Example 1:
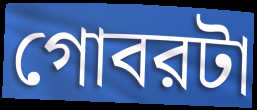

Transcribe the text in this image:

গোবরটা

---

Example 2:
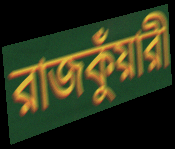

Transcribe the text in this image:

রাজকুঁয়ারী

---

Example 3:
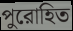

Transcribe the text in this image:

পুরোহিত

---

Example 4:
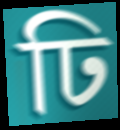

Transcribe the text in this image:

ঢি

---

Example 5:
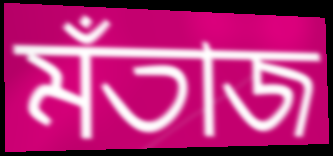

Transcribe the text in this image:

মঁতাজ